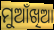
ମୁଆଁଖିଆ